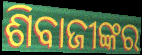
ଶିବାଜୀଙ୍କର